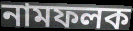
নামফলক